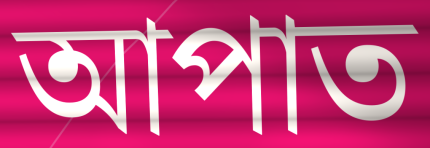
আপাত